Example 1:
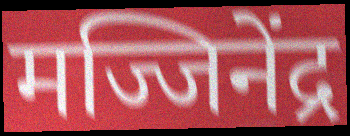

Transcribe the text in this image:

मज्जिनेंद्र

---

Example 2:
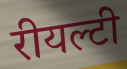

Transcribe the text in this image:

रीयल्टी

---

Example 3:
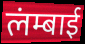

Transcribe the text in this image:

लंम्बाई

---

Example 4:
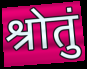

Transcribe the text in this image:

श्रोतुं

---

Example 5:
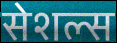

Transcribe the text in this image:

सेशल्स